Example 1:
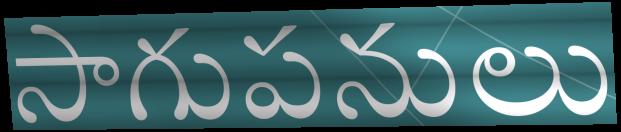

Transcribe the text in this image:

సాగుపనులు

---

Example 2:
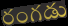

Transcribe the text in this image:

రంగడు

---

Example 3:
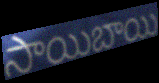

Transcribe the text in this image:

సాయిబాయి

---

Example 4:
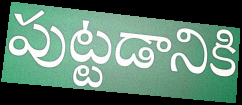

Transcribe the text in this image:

పుట్టడానికి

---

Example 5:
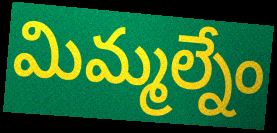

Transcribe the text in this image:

మిమ్మల్నేం